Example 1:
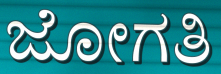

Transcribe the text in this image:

ಜೋಗತಿ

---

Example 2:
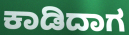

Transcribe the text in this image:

ಕಾಡಿದಾಗ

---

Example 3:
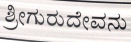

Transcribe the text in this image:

ಶ್ರೀಗುರುದೇವನು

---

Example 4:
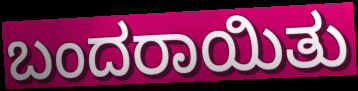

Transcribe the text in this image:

ಬಂದರಾಯಿತು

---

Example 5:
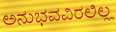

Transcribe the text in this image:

ಅನುಭವವಿರಲಿಲ್ಲ